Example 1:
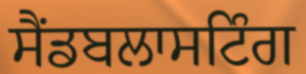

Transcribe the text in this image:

ਸੈਂਡਬਲਾਸਟਿੰਗ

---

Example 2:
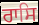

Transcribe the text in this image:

ਰਾਸਿ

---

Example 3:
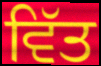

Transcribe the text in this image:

ਵਿੱਤ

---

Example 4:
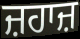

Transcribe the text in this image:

ਜ਼ਹਾਜ਼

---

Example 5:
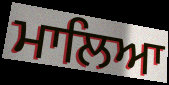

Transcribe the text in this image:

ਮਾਲਿਆ